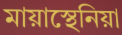
মায়াস্থেনিয়া